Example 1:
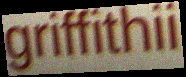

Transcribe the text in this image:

griffithii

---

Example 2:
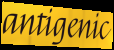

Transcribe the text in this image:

antigenic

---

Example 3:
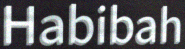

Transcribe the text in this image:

Habibah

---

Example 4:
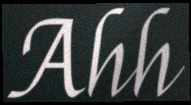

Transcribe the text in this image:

Ahh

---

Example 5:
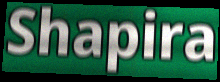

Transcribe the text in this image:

Shapira